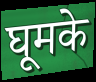
घूमके